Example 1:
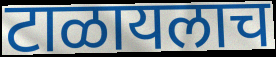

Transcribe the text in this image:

टाळायलाच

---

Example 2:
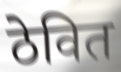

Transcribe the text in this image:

ठेवित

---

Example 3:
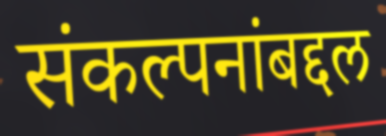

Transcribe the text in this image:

संकल्पनांबद्दल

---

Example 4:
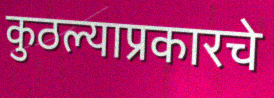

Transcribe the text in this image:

कुठल्याप्रकारचे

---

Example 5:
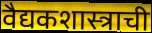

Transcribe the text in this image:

वैद्यकशास्त्राची